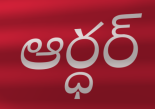
ఆర్ధర్